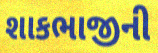
શાકભાજીની